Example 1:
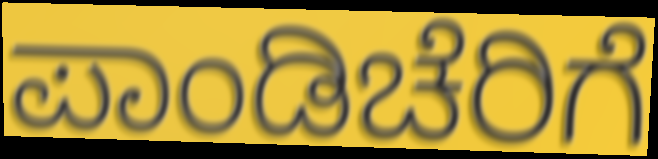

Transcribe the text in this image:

ಪಾಂಡಿಚೆರಿಗೆ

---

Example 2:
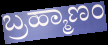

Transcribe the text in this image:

ಬ್ರಹ್ಮಾಣಂ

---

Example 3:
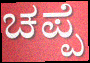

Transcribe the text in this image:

ಚಪ್ಪೆ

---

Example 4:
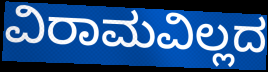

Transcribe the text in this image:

ವಿರಾಮವಿಲ್ಲದ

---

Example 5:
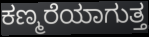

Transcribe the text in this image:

ಕಣ್ಮರೆಯಾಗುತ್ತ